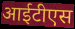
आईटीएस